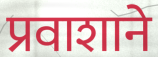
प्रवाशाने